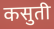
कसुती